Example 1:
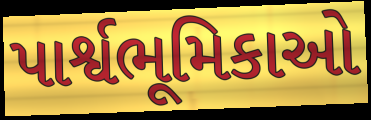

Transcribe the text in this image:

પાર્શ્વભૂમિકાઓ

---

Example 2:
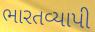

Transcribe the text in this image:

ભારતવ્યાપી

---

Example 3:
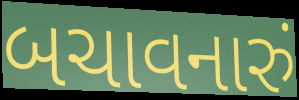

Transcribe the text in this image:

બચાવનારું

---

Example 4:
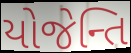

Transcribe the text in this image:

યોજેન્તિ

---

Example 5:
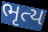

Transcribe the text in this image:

ભૃત્ય